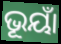
ଭୂୟାଁ